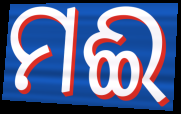
ମଈ